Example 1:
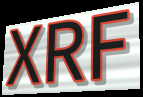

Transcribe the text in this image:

XRF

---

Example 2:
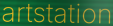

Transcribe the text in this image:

artstation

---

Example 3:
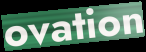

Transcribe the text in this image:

ovation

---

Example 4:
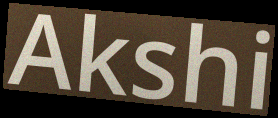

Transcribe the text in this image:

Akshi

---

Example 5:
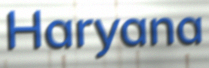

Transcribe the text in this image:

Haryana